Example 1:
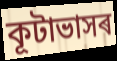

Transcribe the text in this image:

কূটাভাসৰ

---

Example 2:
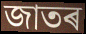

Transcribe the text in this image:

জাতৰ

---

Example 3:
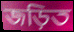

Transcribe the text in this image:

জড়িত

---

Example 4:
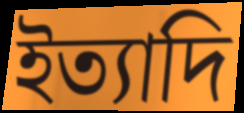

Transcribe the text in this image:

ইত্যাদি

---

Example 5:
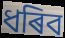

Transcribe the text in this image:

ধৰিব